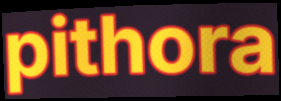
pithora